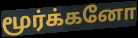
மூர்க்கனோ